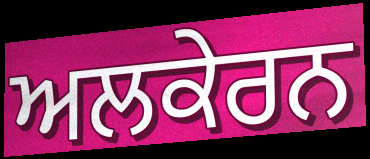
ਅਲਕੇਰਨ